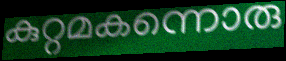
കുറ്റമകന്നൊരു